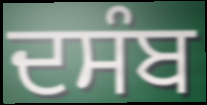
ਦਸੰਬ